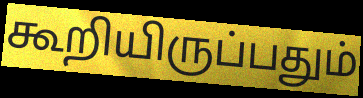
கூறியிருப்பதும்